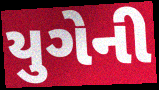
યુગેની